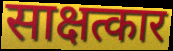
साक्षत्कार